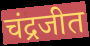
चंद्रजीत